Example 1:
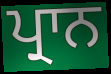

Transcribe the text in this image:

ਪ੍ਰਾਨ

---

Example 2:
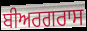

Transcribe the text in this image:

ਬੀਅਰਗਰਾਸ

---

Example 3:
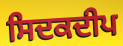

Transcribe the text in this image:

ਸਿਦਕਦੀਪ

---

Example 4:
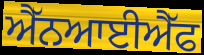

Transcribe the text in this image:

ਐੱਨਆਈਐੱਫ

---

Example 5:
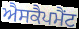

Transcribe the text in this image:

ਐਸਕੈਪਮੈਂਟ